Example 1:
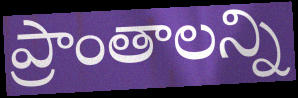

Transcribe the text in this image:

ప్రాంతాలన్ని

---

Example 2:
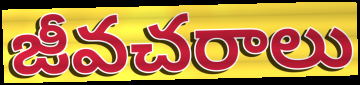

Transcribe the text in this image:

జీవచరాలు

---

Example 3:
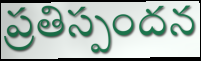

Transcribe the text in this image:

ప్రతిస్పందన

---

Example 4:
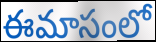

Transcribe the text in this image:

ఈమాసంలో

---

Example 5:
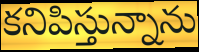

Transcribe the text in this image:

కనిపిస్తున్నాను